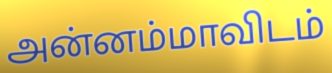
அன்னம்மாவிடம்